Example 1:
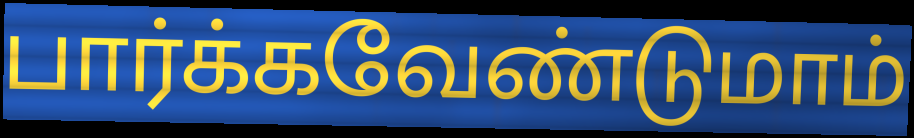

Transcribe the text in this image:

பார்க்கவேண்டுமாம்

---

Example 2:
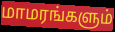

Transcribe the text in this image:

மாமரங்களும்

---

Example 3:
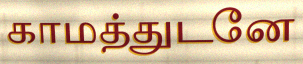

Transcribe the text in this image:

காமத்துடனே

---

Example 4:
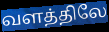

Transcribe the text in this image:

வளத்திலே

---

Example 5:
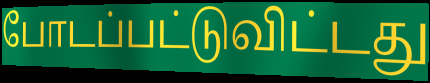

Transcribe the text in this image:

போடப்பட்டுவிட்டது